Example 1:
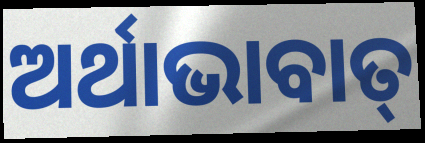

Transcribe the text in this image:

ଅର୍ଥାଭାବାତ୍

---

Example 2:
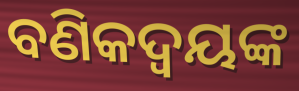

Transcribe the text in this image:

ବଣିକଦ୍ଵୟଙ୍କ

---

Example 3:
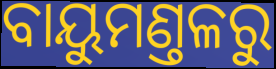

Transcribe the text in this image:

ବାୟୁମଣ୍ତଳରୁ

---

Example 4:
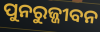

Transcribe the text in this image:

ପୁନରୁଜ୍ଜୀବନ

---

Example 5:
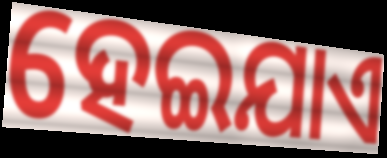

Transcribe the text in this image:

ହେଇଯାଏ